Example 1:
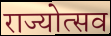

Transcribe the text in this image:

राज्योत्सव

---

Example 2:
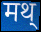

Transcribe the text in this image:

मथ्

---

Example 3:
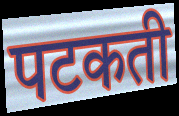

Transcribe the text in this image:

पटकती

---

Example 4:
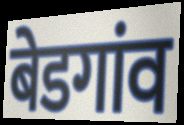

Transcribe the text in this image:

बेडगांव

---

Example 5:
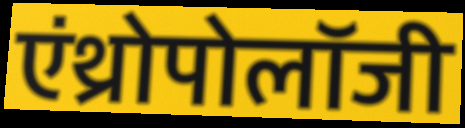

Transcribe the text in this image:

एंथ्रोपोलॉजी